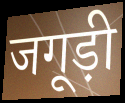
जगूड़ी